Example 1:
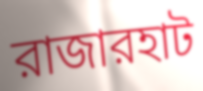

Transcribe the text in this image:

রাজারহাট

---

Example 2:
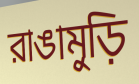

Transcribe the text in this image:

রাঙামুড়ি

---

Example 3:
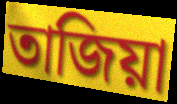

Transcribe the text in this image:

তাজিয়া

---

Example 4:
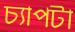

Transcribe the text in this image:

চ্যাপটা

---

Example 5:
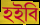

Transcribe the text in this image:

হইবি